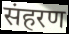
संहरण